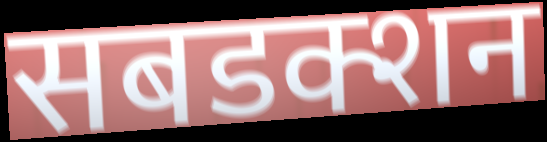
सबडक्शन